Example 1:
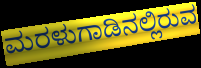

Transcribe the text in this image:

ಮರಳುಗಾಡಿನಲ್ಲಿರುವ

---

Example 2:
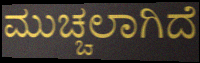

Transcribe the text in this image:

ಮುಚ್ಚಲಾಗಿದೆ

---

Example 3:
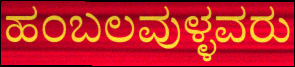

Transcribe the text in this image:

ಹಂಬಲವುಳ್ಳವರು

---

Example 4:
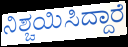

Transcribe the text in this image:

ನಿಶ್ಚಯಿಸಿದ್ದಾರೆ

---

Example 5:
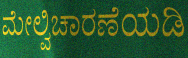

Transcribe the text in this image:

ಮೇಲ್ವಿಚಾರಣೆಯಡಿ